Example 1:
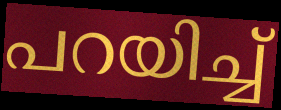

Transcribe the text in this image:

പറയിച്ച്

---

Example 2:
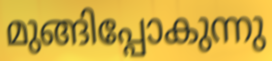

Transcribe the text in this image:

മുങ്ങിപ്പോകുന്നു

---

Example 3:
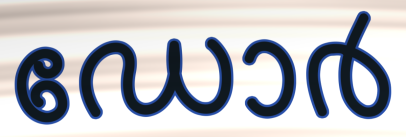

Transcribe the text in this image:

ഡോർ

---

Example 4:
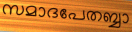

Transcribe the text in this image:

സമാദപേതബ്ബാ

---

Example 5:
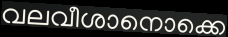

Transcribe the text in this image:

വലവീശാനൊക്കെ